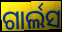
ଗାର୍ଲସ